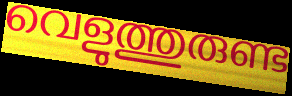
വെളുത്തുരുണ്ട